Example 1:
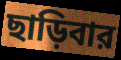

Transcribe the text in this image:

ছাড়িবার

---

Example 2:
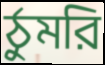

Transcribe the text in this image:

ঠুমরি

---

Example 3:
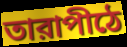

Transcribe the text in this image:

তারাপীঠে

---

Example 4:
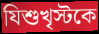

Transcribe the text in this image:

যিশুখৃস্টকে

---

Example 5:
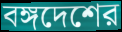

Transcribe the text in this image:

বঙ্গদেশের